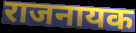
राजनायक